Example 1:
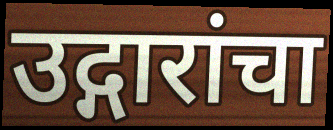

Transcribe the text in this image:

उद्गारांचा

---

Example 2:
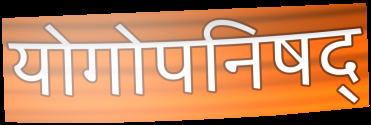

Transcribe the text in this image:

योगोपनिषद्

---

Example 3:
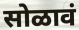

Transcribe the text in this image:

सोळावं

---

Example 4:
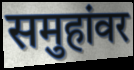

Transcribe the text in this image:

समुहांवर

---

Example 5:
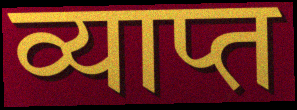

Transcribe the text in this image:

व्याप्त